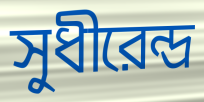
সুধীরেন্দ্র